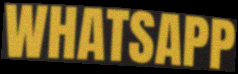
WHATSAPP